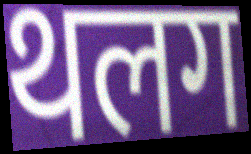
थलग